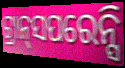
ଟ୍ରାନ୍‌ସପରେନ୍ସି